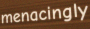
menacingly